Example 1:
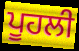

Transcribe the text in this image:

ਪੂਹਲੀ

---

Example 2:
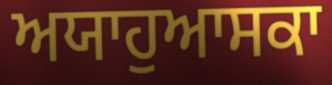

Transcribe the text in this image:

ਅਯਾਹੁਆਸਕਾ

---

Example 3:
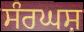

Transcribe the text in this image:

ਸੰਰਘਸ਼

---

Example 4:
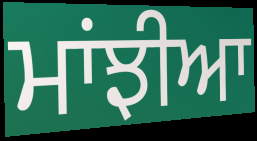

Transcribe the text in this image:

ਮਾਂਝੀਆ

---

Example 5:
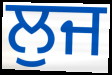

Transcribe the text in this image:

ਲੁਜ